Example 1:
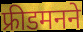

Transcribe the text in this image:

फ्रीडमनने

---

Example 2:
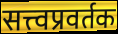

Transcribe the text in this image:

सत्त्वप्रवर्तक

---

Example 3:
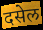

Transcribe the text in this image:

दसेल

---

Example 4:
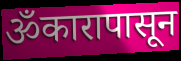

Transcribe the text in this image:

ॐकारापासून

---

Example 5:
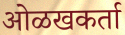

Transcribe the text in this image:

ओळखकर्ता